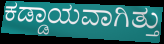
ಕಡ್ಡಾಯವಾಗಿತ್ತು